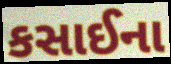
કસાઈના